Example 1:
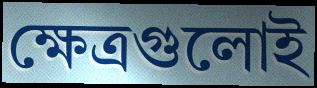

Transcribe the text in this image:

ক্ষেত্রগুলোই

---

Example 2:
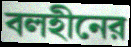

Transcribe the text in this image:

বলহীনের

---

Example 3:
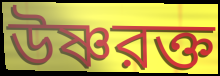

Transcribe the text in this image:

উষ্ণরক্ত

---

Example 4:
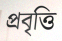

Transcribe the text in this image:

প্রবৃত্তি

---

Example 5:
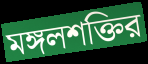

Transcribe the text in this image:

মঙ্গলশক্তির